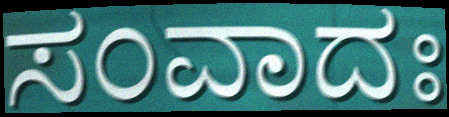
ಸಂವಾದಃ